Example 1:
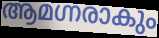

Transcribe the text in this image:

ആമഗ്നരാകും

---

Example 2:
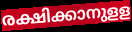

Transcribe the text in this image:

രക്ഷിക്കാനുളള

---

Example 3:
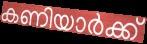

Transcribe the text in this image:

കണിയാർക്ക്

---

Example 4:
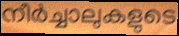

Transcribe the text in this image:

നീർച്ചാലുകളുടെ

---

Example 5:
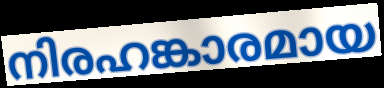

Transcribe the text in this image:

നിരഹങ്കാരമായ